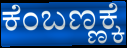
ಕೆಂಬಣ್ಣಕ್ಕೆ